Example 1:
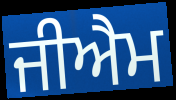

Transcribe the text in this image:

ਜੀਐਮ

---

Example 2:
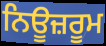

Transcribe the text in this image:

ਨਿਊਜ਼ਰੂਮ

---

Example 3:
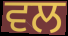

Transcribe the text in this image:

ਵਲ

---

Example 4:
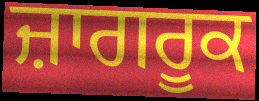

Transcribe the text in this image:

ਜ਼ਾਗਰੂਕ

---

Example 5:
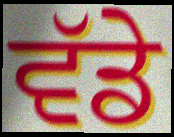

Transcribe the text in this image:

ਵੱਡੇ